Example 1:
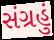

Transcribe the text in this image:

સંગ્રહું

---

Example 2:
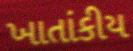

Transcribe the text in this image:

ખાતાંકીય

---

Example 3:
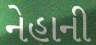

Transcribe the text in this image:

નેહાની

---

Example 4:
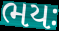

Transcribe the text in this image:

ભયઃ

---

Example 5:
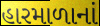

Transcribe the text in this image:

હારમાળાનાં